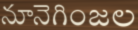
నూనెగింజల